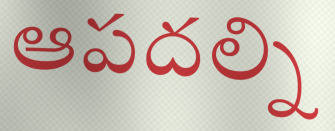
ఆపదల్ని